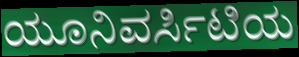
ಯೂನಿವರ್ಸಿಟಿಯ